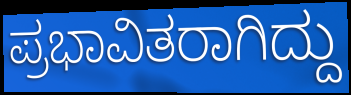
ಪ್ರಭಾವಿತರಾಗಿದ್ದು